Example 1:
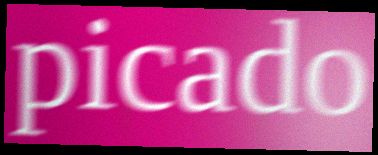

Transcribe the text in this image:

picado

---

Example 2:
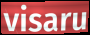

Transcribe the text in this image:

visaru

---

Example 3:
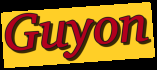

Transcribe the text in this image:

Guyon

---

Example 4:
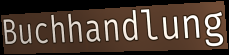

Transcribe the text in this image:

Buchhandlung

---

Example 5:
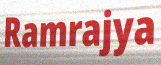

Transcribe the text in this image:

Ramrajya